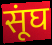
सूंघ